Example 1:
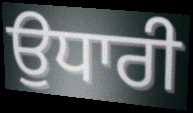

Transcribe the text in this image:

ਉਧਾਰੀ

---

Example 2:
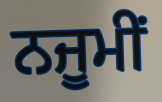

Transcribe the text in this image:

ਨਜੂਮੀਂ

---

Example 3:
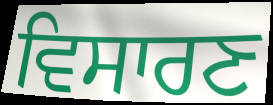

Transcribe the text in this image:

ਵਿਸਾਰਣ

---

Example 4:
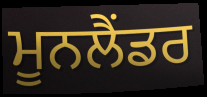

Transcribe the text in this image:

ਮੂਨਲੈਂਡਰ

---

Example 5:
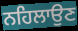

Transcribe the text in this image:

ਨਹਿਲਾਉਣ